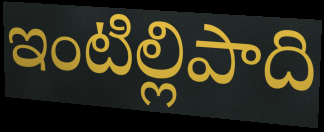
ఇంటిల్లిపాది